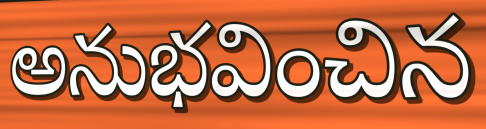
అనుభవించిన